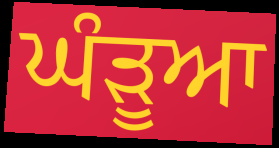
ਘੰੜੂਆ